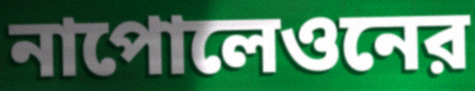
নাপোলেওনের